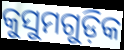
କୁସୁମଗୁଡ଼ିକ